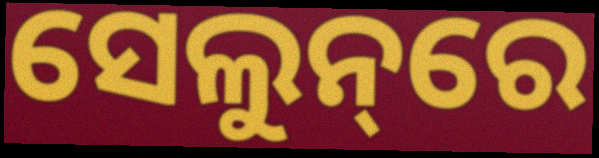
ସେଲୁନ୍‌ରେ